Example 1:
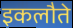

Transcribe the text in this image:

इकलौते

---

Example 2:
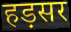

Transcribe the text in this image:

हड़सर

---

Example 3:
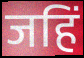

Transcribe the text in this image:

जहिं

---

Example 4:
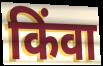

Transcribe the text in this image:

किंवा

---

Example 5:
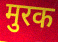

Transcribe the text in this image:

मुरक